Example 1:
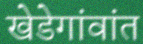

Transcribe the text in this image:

खेडेगांवांत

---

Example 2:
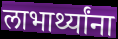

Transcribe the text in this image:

लाभार्थ्यांना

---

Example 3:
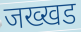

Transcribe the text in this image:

जख्खड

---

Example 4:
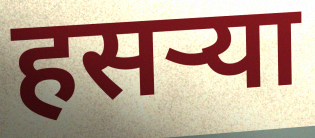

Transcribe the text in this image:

हसऱ्या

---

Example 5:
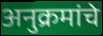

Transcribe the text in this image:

अनुक्रमांचे